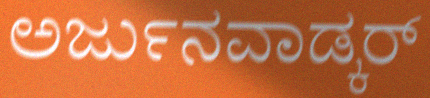
ಅರ್ಜುನವಾಡ್ಕರ್